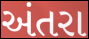
અંતરા